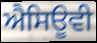
ਐਸਿਊਵੀ